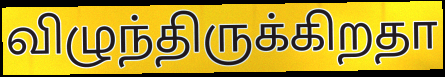
விழுந்திருக்கிறதா